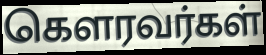
கௌரவர்கள்